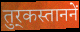
तुर्कस्ताननें